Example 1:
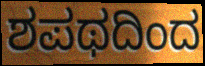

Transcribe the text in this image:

ಶಪಥದಿಂದ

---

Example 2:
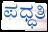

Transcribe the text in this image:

ಪಧ್ಧತಿ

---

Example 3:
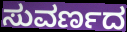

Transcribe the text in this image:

ಸುವರ್ಣದ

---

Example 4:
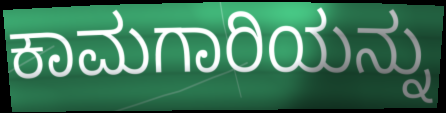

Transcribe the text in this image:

ಕಾಮಗಾರಿಯನ್ನು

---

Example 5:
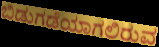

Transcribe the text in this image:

ಬಿಡುಗಡೆಯಾಗಲಿರುವ